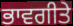
ਭਾਵਗੀਤੇ